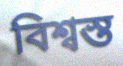
বিশ্বস্ত